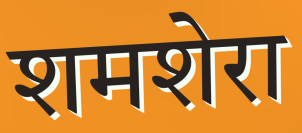
शमशेरा